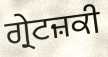
ਗ੍ਰੇਟਜ਼ਕੀ